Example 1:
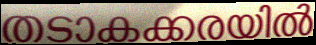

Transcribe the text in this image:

തടാകക്കരയിൽ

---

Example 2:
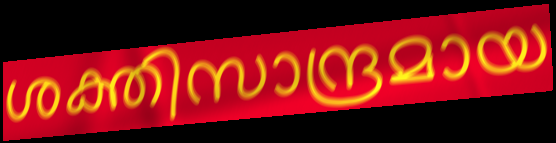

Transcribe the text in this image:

ശക്തിസാന്ദ്രമായ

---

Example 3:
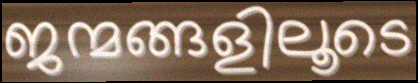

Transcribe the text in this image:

ജന്മങ്ങളിലൂടെ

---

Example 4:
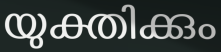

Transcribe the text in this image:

യുക്തിക്കും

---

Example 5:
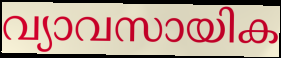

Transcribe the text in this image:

വ്യാവസായിക